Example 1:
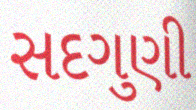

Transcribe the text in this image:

સદગુણી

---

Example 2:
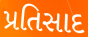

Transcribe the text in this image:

પ્રતિસાદ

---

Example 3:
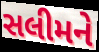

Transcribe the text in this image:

સલીમને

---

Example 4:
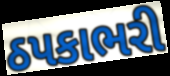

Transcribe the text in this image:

ઠપકાભરી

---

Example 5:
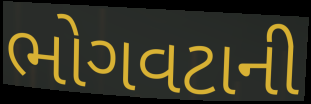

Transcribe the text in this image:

ભોગવટાની